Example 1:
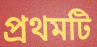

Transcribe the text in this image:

প্ৰথমটি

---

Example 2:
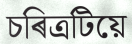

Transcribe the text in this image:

চৰিত্ৰটিয়ে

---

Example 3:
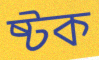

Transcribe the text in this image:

ষ্টক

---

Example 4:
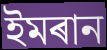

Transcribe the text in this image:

ইমৰান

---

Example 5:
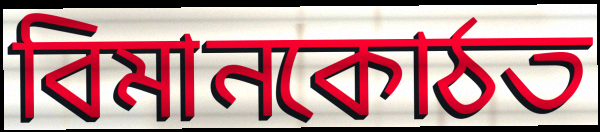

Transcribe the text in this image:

বিমানকোঠত